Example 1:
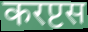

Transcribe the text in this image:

करप्टस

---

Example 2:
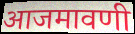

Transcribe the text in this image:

आजमावणी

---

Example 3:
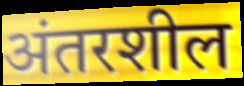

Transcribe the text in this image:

अंतरशील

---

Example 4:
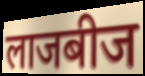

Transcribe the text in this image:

लाजबीज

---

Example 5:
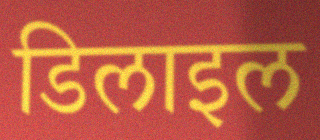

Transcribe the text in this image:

डिलाइल